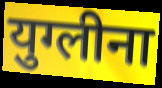
युग्लीना